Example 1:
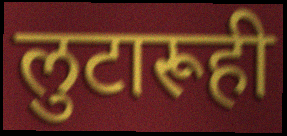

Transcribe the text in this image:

लुटारूही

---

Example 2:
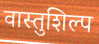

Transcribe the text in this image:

वास्तुशिल्प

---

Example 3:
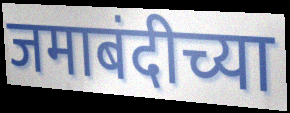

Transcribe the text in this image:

जमाबंदीच्या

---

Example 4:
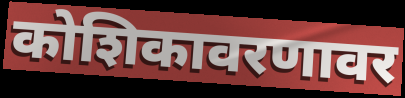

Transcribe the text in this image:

कोशिकावरणावर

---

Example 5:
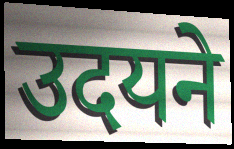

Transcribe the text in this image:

उदयने